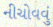
નીચોવવું